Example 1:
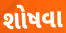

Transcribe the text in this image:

શોષવા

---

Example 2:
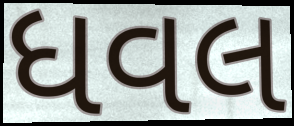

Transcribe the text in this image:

ધવલ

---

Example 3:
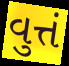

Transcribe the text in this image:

વુત્તં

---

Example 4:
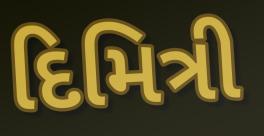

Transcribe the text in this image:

દિમિત્રી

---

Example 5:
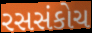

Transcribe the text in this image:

રસસંકોચ